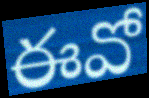
ఈవో